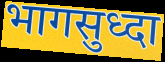
भागसुध्दा